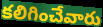
కలిగించేవారు